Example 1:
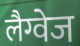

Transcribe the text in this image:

लैग्वेज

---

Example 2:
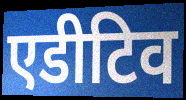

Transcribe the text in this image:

एडीटिव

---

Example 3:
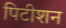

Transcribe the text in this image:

पिटीशन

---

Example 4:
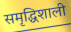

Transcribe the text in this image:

समृद्धिशाली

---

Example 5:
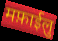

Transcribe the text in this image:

मफ़ाईलु